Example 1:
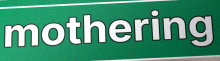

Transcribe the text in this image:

mothering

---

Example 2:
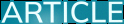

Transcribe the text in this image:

ARTICLE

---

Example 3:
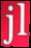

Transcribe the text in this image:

jl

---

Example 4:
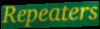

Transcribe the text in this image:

Repeaters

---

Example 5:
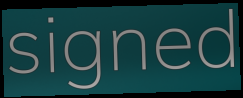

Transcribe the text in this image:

signed